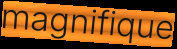
magnifique